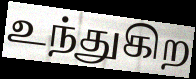
உந்துகிற